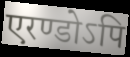
एरण्डोऽपि